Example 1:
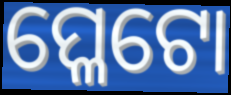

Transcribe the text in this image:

ପ୍ଳେଟୋ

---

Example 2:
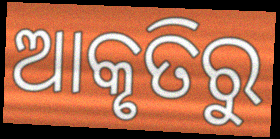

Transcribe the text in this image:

ଆକୃତିରୁ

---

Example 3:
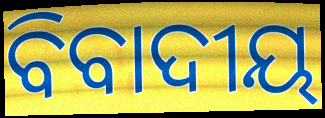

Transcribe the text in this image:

ବିବାଦୀୟ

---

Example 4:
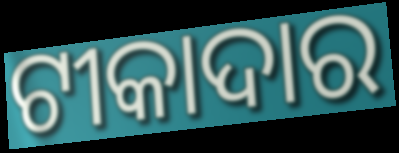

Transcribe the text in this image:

ଟୀକାଦାର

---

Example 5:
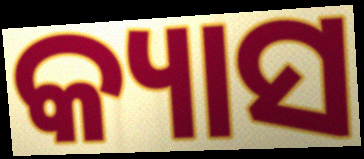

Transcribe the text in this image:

କ୍ୟାସ